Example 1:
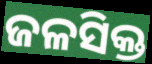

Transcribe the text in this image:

ଜଳସିକ୍ତ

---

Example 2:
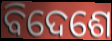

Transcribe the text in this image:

ବିଦେଶେ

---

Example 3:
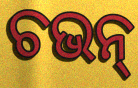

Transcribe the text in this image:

ଚଭନ୍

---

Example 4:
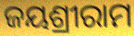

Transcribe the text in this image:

ଜୟଶ୍ରୀରାମ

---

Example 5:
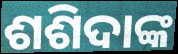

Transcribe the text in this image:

ଶଶିଦାଙ୍କ